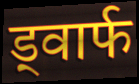
ड्वार्फ